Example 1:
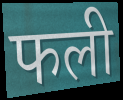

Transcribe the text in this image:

फली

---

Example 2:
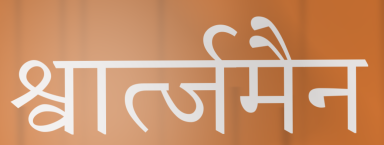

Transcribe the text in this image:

श्वार्त्जमैन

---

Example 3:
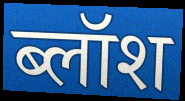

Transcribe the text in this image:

ब्लॉश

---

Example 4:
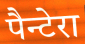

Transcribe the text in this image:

पैन्टेरा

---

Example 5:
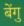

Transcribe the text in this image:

बेंगु